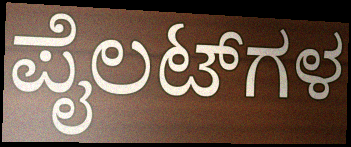
ಪೈಲಟ್‌ಗಳ